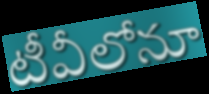
టీవీలోనూ